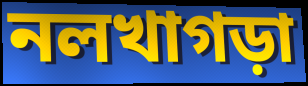
নলখাগড়া